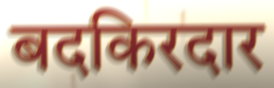
बदकिरदार